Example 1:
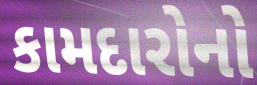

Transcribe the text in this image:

કામદારોનો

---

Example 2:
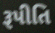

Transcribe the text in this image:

રૂપીતિ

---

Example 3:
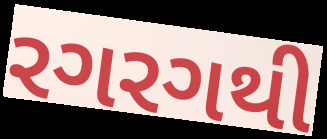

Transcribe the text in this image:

રગરગથી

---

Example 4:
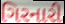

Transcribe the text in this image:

ગિરનારી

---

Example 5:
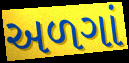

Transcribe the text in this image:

અળગાં